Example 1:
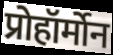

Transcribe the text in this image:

प्रोहॉर्मोन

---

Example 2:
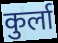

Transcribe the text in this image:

कुर्ला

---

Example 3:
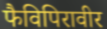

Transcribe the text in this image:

फैविपिरावीर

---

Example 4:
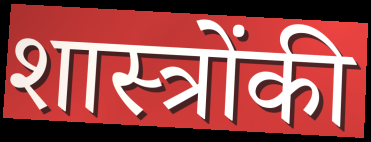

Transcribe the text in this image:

शास्त्रोंकी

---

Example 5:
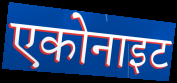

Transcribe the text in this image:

एकोनाइट